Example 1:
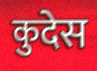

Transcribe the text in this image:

कुदेस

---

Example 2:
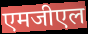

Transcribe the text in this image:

एमजीएल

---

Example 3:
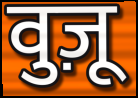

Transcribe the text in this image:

वुज़ू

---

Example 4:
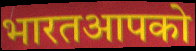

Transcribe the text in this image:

भारतआपको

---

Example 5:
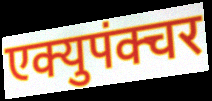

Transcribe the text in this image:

एक्युपंक्चर